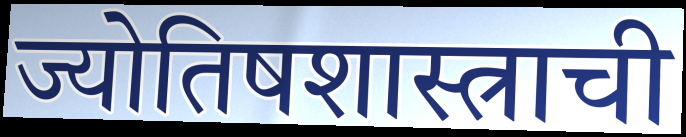
ज्योतिषशास्त्राची